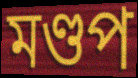
মণ্ডপ